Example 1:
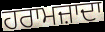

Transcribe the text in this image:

ਹਰਾਮਜ਼ਾਦਾ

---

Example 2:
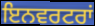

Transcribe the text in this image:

ਇਨਵਰਟਰਾਂ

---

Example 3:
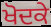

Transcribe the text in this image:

ਖੋਦਕੇ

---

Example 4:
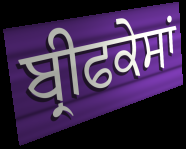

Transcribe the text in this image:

ਬ੍ਰੀਫਕੇਸਾਂ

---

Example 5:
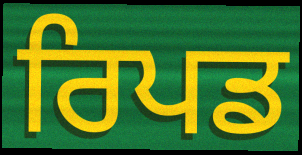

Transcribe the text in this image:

ਰਿਪਡ